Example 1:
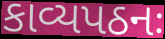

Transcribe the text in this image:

કાવ્યપઠનઃ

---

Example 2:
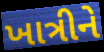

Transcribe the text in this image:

ખાત્રીને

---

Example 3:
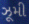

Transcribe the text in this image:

ઝૂમી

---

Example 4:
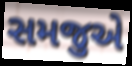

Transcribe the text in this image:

સમજુએ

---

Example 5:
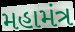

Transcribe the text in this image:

મહામંત્ર